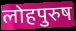
लोहपुरुष